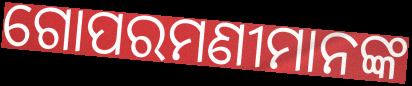
ଗୋପରମଣୀମାନଙ୍କ